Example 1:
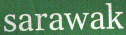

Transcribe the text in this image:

sarawak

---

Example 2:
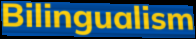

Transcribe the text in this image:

Bilingualism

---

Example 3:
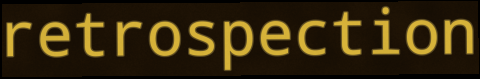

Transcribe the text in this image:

retrospection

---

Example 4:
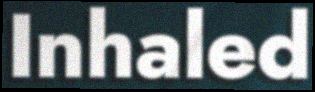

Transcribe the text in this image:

Inhaled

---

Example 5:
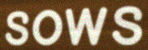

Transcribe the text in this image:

sows